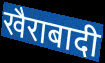
खैराबादी